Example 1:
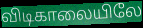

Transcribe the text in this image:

விடிகாலையிலே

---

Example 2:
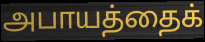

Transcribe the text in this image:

அபாயத்தைக்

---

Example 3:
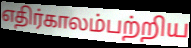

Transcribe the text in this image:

எதிர்காலம்பற்றிய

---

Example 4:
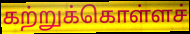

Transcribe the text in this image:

கற்றுக்கொள்ளச்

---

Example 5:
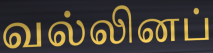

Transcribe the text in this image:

வல்லினப்